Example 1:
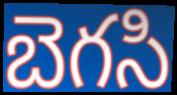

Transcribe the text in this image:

బెగసి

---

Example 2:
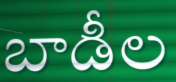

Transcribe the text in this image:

బాడీల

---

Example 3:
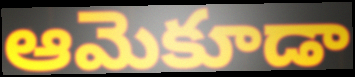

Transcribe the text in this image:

ఆమెకూడా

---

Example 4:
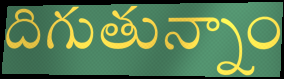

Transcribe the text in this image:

దిగుతున్నాం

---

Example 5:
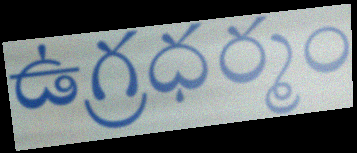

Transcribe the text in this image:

ఉగ్రధర్మం